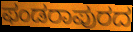
ಫಂಡರಾಪುರದ